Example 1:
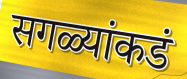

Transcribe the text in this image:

सगळ्यांकडं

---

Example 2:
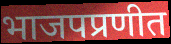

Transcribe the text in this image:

भाजपप्रणीत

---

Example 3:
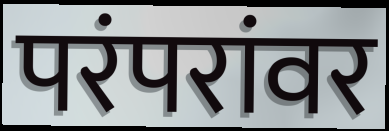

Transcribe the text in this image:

परंपरांवर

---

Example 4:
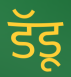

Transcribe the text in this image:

डॅडू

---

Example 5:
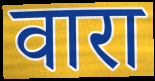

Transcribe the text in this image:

वारा